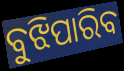
ବୁଝିପାରିବ